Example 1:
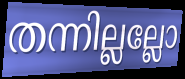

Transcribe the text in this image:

തന്നില്ലല്ലോ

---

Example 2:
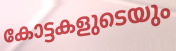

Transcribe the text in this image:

കോട്ടകളുടെയും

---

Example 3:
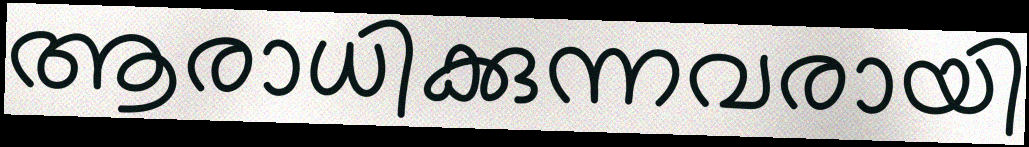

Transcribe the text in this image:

ആരാധിക്കുന്നവരായി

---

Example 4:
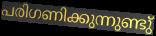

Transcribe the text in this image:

പരിഗണിക്കുന്നുണ്ടു്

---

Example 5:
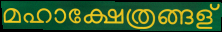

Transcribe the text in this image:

മഹാക്ഷേത്രങ്ങള്